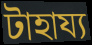
টাহায্য